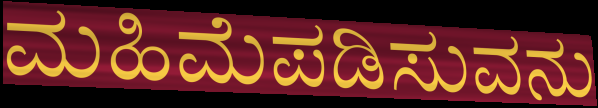
ಮಹಿಮೆಪಡಿಸುವನು